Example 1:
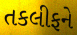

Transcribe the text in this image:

તકલીફને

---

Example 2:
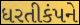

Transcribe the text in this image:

ધરતીકંપને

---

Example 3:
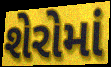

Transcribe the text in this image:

શેરોમાં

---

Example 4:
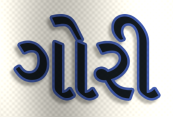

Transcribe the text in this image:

ગોરી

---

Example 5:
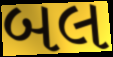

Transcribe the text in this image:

બલ